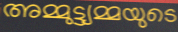
അമ്മുട്ട്യമ്മയുടെ